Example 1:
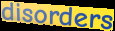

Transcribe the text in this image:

disorders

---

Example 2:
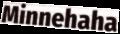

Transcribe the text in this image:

Minnehaha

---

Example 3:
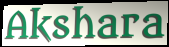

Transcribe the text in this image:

Akshara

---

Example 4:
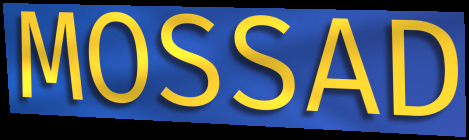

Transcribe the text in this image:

MOSSAD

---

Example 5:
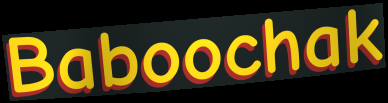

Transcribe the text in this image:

Baboochak